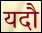
यदौ